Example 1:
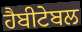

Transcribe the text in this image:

ਹੈਬੀਟੇਬਲ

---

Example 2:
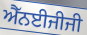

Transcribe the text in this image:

ਐੱਨਈਜੀਜੀ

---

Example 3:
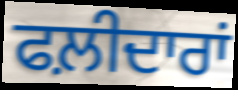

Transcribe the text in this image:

ਫਲ਼ੀਦਾਰਾਂ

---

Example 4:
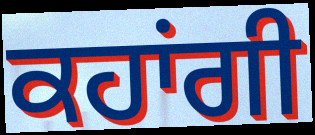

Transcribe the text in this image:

ਕਹਾਂਗੀ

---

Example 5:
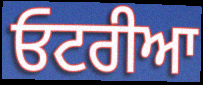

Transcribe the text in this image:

ਓਟਰੀਆ